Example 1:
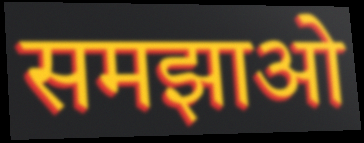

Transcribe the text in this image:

समझाओ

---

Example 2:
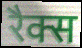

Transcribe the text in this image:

रैक्स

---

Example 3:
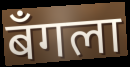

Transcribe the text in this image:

बँगला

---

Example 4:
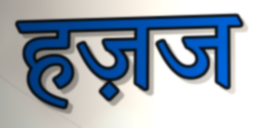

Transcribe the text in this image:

हज़ज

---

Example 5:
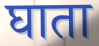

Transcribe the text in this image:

घाता